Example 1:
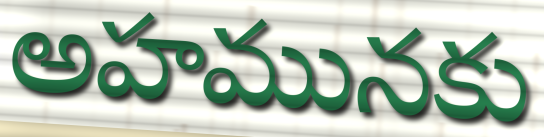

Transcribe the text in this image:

అహమునకు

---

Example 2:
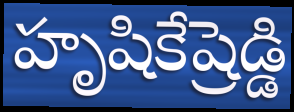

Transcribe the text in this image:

హృషికేష్రెడ్డి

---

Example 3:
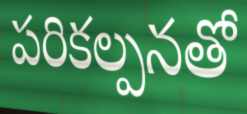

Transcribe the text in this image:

పరికల్పనతో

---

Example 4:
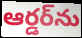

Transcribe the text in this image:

ఆర్డర్‌ను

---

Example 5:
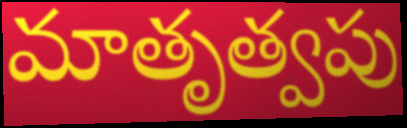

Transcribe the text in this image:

మాతృత్వపు